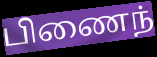
பிணைந்